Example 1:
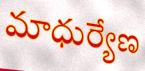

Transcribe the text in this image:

మాధుర్యేణ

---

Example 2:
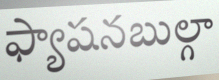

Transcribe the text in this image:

ఫ్యాషనబుల్గా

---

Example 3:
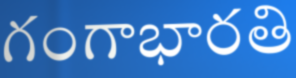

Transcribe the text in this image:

గంగాభారతి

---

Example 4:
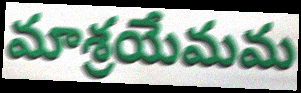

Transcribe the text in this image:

మాశ్రయేమమ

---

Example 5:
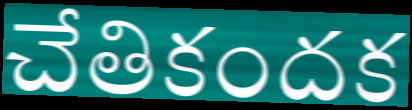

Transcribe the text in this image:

చేతికందక